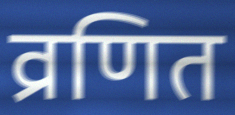
व्रणित